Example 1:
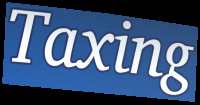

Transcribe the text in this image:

Taxing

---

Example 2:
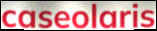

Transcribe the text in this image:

caseolaris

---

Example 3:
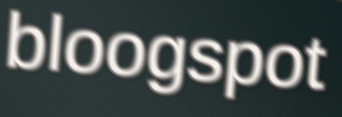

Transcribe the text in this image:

bloogspot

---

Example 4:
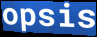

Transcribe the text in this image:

opsis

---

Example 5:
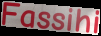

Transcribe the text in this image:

Fassihi